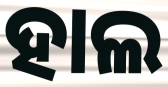
ହାଲ